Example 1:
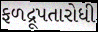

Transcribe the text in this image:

ફળદ્રૂપતારોધી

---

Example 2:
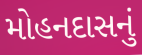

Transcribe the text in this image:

મોહનદાસનું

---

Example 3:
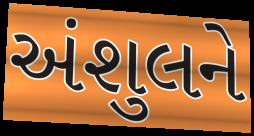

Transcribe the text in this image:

અંશુલને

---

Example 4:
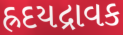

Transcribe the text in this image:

હ્રદયદ્રાવક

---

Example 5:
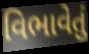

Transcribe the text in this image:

વિભાવેતું